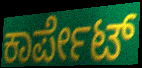
ಕಾರ್ಪೇಟ್